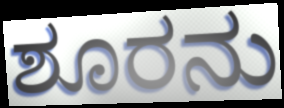
ಶೂರನು